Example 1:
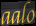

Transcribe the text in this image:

aalo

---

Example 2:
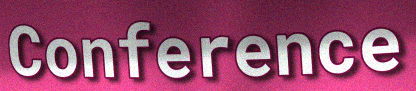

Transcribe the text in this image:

Conference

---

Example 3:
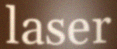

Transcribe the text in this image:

laser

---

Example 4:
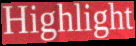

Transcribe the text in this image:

Highlight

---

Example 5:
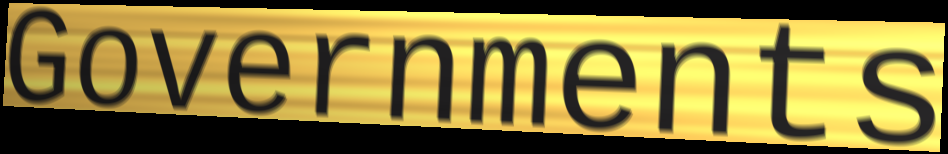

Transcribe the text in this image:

Governments